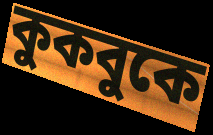
কুকবুকে